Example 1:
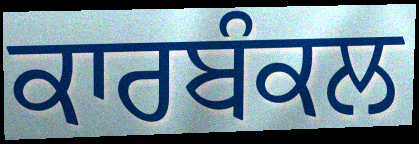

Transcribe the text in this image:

ਕਾਰਬੰਕਲ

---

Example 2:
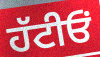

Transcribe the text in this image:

ਹੱਟੀਓਂ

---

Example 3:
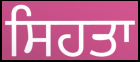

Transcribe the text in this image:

ਸਿਹਤਾ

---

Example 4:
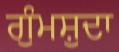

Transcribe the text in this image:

ਗੁੰਮਸ਼ੁਦਾ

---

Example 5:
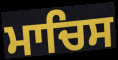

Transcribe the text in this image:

ਮਾਚਿਸ